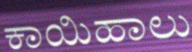
ಕಾಯಿಹಾಲು